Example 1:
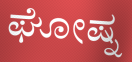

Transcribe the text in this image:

ಘೋಷ್ನ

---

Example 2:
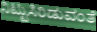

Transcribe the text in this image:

ನಿಟ್ಟುಸಿರಿಡುವಂತೆ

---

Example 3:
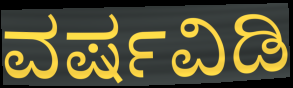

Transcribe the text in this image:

ವರ್ಷವಿಡಿ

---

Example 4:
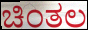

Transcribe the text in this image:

ಚಿಂತಲ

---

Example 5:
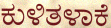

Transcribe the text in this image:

ಕುಳಿತಳಾಕೆ